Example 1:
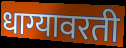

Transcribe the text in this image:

धाग्यावरती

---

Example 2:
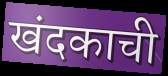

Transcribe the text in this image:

खंदकाची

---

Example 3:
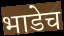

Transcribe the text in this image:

भाडेच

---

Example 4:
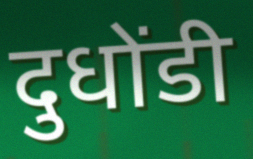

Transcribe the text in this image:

दुधोंडी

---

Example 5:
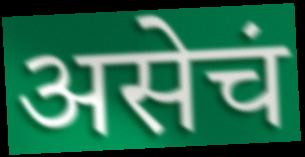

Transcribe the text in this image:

असेचं